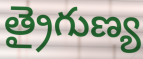
త్రైగుణ్య